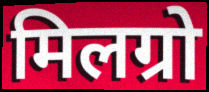
मिलग्रो